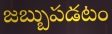
జబ్బుపడటం